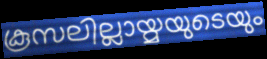
കൂസലില്ലായ്മയുടെയും